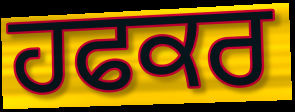
ਹਫਕਰ